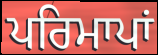
ਪਰਿਮਾਪਾਂ